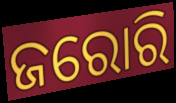
ଜରୋରି